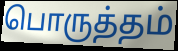
பொருத்தம்